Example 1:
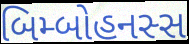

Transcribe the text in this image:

બિમ્બોહનસ્સ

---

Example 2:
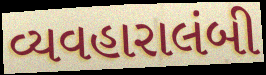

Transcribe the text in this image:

વ્યવહારાલંબી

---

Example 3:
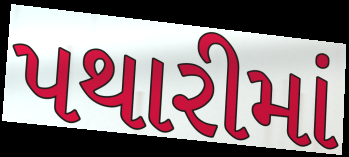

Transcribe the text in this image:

પથારીમાં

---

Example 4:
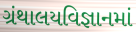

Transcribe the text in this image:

ગ્રંથાલયવિજ્ઞાનમાં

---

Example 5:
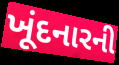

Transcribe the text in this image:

ખૂંદનારની